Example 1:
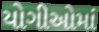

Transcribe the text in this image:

યોગીઓમાં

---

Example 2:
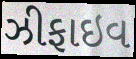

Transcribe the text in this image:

ઝીફાઇવ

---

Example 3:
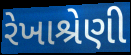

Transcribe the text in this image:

રેખાશ્રેણી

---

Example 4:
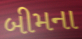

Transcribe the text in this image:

બીમના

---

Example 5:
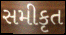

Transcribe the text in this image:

સમીકૃત